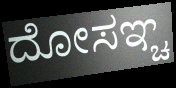
ದೋಸಞ್ಚ